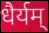
धैर्यम्